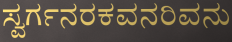
ಸ್ವರ್ಗನರಕವನರಿವನು